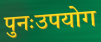
पुनःउपयोग